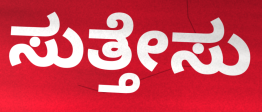
ಸುತ್ತೇಸು